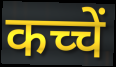
कच्चें